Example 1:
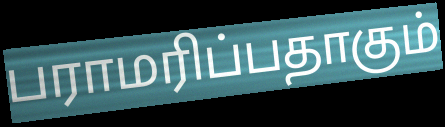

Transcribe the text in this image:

பராமரிப்பதாகும்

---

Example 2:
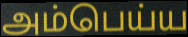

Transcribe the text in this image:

அம்பெய்ய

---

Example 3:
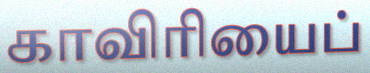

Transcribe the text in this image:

காவிரியைப்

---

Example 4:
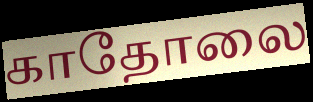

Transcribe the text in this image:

காதோலை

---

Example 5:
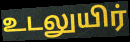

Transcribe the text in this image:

உடலுயிர்